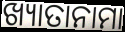
ଖ୍ୟାତାନାମା